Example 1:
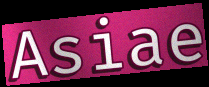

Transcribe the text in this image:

Asiae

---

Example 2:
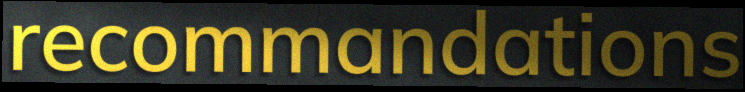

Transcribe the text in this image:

recommandations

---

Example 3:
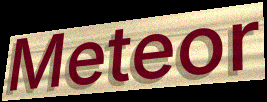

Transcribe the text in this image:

Meteor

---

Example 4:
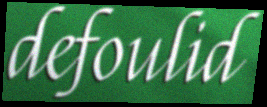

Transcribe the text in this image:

defoulid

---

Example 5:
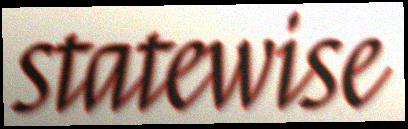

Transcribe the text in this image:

statewise